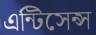
এন্টিসেন্স